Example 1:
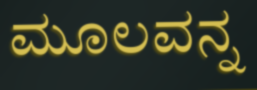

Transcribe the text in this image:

ಮೂಲವನ್ನ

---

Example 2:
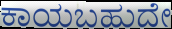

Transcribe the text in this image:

ಕಾಯಬಹುದೇ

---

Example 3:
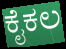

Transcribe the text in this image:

ಕೈಕಲ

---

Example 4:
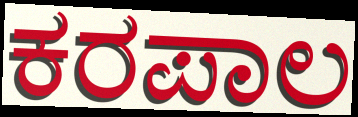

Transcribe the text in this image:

ಕರಪಾಲ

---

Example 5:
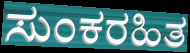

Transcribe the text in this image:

ಸುಂಕರಹಿತ